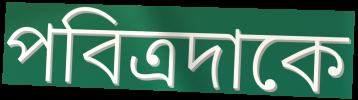
পবিত্রদাকে